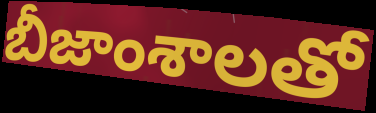
బీజాంశాలతో